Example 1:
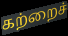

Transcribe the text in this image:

கற்றைச்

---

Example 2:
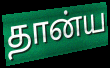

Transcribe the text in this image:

தான்ய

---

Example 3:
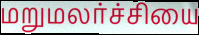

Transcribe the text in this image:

மறுமலர்ச்சியை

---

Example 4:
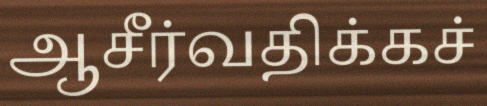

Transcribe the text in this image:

ஆசீர்வதிக்கச்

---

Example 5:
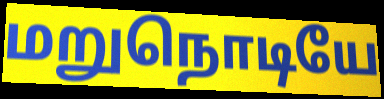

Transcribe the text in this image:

மறுநொடியே